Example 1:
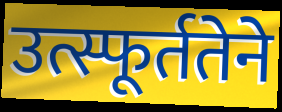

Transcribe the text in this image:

उत्स्फूर्ततेने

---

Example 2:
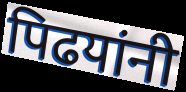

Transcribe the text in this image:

पिढयांनी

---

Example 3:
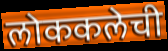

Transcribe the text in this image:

लोककलेची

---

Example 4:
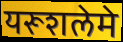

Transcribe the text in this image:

यरूशलेमे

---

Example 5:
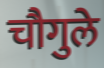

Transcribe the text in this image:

चौगुले